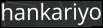
hankariyo